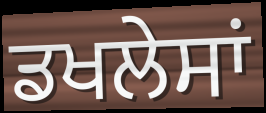
ਡਖਲੇਸਾਂ